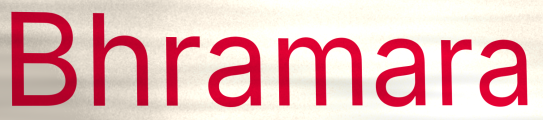
Bhramara